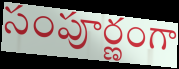
సంపూర్ణంగా